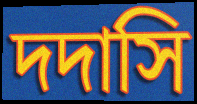
দদাসি